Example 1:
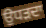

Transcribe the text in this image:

ਉਧੜਦਾ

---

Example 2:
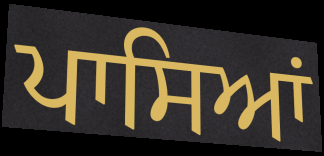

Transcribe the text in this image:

ਪਾਸਿਆਂ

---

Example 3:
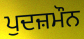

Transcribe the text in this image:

ਪੁਦਜ਼ਮੌਨ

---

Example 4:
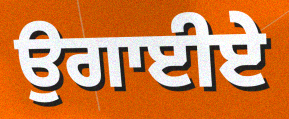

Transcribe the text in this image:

ਉਗਾਈਏ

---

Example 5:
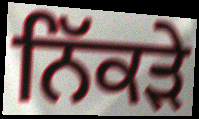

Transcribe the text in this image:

ਨਿੱਕੜੇ